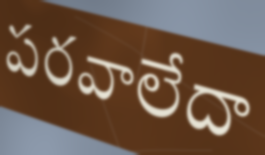
పరవాలేదా